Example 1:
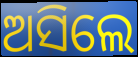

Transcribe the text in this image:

ଅସିଲେ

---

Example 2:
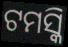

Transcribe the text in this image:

ଟମସ୍କି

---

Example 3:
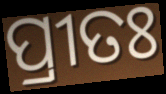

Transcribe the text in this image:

ପ୍ରୀତଃ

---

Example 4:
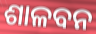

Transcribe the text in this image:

ଶାଳବନ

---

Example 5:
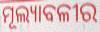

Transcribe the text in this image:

ମୂଲ୍ୟାବଳୀର